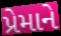
પ્રેમાને